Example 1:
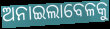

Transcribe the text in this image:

ଅନାଇଲାବେଳକୁ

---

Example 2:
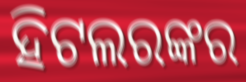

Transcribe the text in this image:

ହିଟଲରଙ୍କର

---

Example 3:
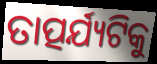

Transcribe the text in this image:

ତାତ୍ପର୍ଯ୍ୟଟିକୁ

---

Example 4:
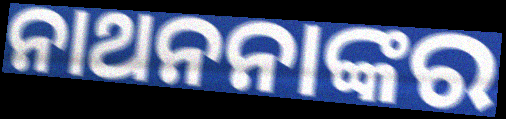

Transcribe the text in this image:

ନାଥନନାଙ୍କର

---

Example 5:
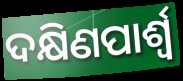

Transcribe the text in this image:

ଦକ୍ଷିଣପାର୍ଶ୍ବ